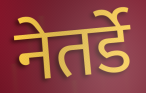
नेतर्डे